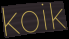
koik